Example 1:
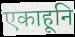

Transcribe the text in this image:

एकाहूनि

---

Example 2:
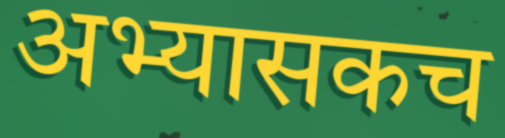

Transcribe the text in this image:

अभ्यासकच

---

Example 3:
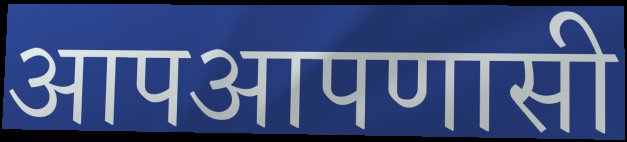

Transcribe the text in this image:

आपआपणासी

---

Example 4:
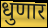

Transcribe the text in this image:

धुणार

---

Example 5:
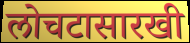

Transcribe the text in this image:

लोचटासारखी